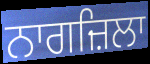
ਨਾਗਜ਼ਿਲਾ